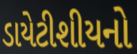
ડાયેટીશીયનો